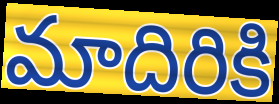
మాదిరికి